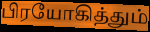
பிரயோகித்தும்